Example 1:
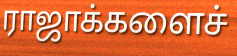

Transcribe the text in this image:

ராஜாக்களைச்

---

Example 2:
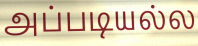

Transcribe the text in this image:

அப்படியல்ல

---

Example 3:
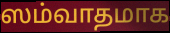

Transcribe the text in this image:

ஸம்வாதமாக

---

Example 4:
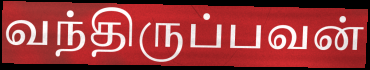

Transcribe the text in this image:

வந்திருப்பவன்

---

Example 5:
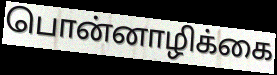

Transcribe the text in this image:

பொன்னாழிக்கை